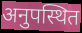
अनुपस्थित